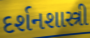
દર્શનશાસ્ત્રી